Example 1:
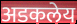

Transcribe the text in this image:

अडकलेय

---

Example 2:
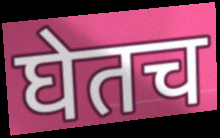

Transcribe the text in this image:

घेतच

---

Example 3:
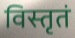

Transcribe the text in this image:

विस्तृतं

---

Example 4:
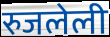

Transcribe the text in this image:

रुजलेली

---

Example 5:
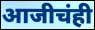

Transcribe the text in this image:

आजीचंही